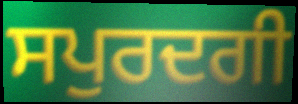
ਸਪੁਰਦਗੀ